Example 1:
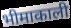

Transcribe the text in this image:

भीमाकाली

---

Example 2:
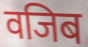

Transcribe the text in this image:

वजिब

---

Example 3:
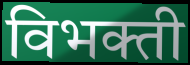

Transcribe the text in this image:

विभक्ती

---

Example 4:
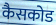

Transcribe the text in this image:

कैसकोड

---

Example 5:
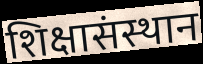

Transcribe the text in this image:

शिक्षासंस्थान